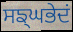
ਸਙ੍ਘਭੇਦਂ